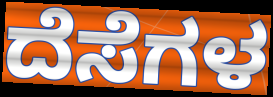
ದೆಸೆಗಳ